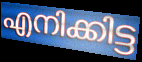
എനിക്കിട്ട